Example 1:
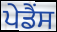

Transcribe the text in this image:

ਪੇਡੈਂਸ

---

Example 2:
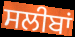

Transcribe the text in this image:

ਸਲੀਬਾਂ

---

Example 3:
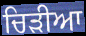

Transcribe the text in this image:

ਚਿੜੀਆ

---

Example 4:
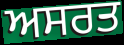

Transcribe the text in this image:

ਅਸਰਤ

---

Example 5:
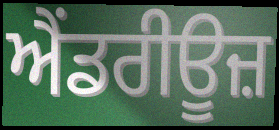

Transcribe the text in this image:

ਐਂਡਰੀਊਜ਼